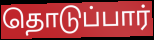
தொடுப்பார்